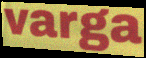
varga